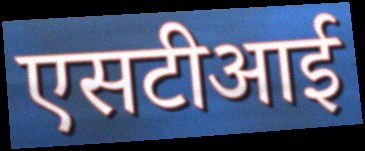
एसटीआई